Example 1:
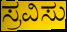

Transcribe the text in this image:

ಸ್ರವಿಸು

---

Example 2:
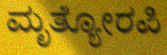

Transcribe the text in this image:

ಮೃತ್ಯೋರಪಿ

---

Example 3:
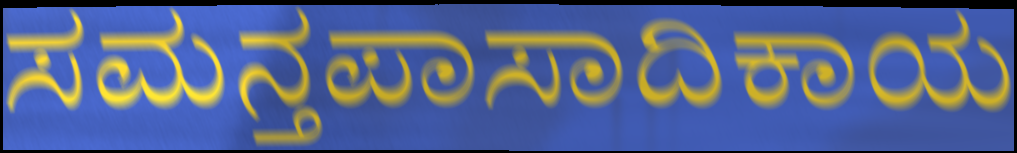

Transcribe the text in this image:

ಸಮನ್ತಪಾಸಾದಿಕಾಯ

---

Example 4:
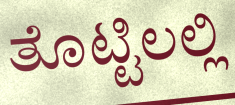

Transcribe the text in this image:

ತೊಟ್ಟಿಲಲ್ಲಿ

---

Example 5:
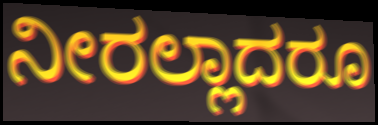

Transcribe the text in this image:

ನೀರಲ್ಲಾದರೂ